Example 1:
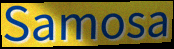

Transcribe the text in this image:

Samosa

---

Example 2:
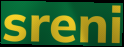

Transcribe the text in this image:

sreni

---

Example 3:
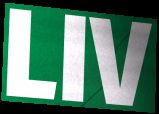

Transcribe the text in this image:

LIV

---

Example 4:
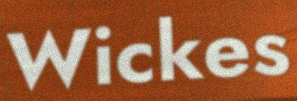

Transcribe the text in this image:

Wickes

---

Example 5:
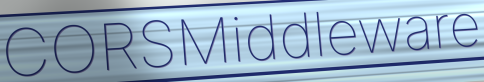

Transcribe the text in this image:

CORSMiddleware